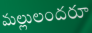
మల్లులందరూ